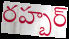
రహ్బర్